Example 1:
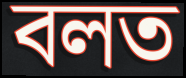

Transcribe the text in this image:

বলত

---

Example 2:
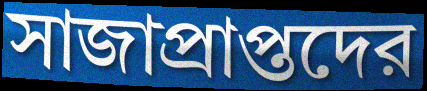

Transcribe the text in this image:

সাজাপ্রাপ্তদের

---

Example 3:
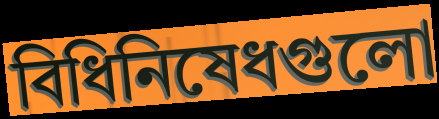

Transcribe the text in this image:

বিধিনিষেধগুলো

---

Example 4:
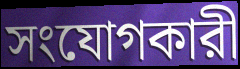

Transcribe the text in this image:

সংযোগকারী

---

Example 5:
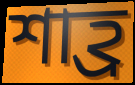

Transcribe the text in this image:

শাহ্র